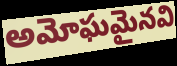
అమోఘమైనవి